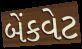
બેંકવેટ